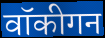
वॉकीगन